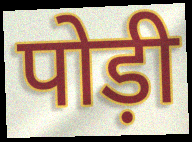
पोड़ी